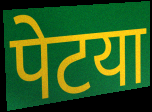
पेटया